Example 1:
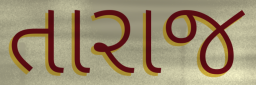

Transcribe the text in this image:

તારાજ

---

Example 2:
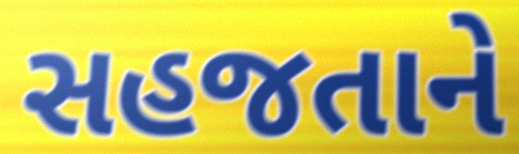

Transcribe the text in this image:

સહજતાને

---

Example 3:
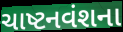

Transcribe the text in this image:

ચાષ્ટનવંશના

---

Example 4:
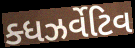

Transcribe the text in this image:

ક્ધઝર્વેટિવ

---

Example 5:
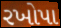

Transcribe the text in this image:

રખોપા